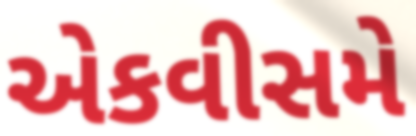
એકવીસમે